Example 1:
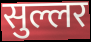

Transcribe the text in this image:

सुल्लर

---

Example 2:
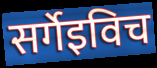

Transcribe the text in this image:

सर्गेइविच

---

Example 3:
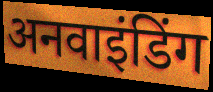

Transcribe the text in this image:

अनवाइंडिंग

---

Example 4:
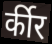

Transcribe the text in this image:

र्कीर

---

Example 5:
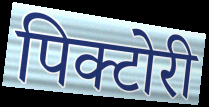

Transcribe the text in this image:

पिक्टोरी